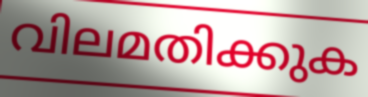
വിലമതിക്കുക